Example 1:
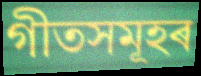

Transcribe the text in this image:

গীতসমূহৰ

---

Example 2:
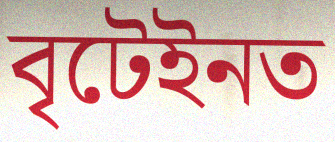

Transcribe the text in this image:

বৃটেইনত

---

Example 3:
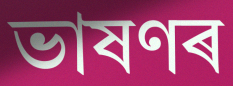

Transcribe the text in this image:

ভাষণৰ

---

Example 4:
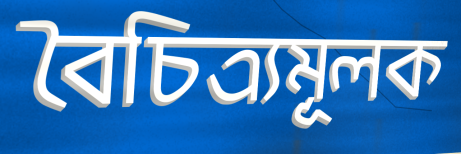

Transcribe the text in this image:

বৈচিত্ৰ্যমূলক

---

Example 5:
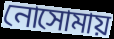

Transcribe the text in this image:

নোসোমায়